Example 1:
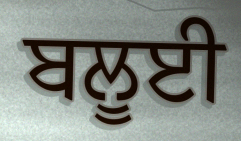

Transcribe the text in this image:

ਬਲੂਈ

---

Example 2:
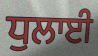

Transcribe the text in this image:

ਧੁਲਾਈ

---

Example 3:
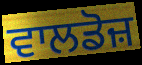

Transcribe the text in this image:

ਵਾਲਡੋਜ਼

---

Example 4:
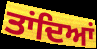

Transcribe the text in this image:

ਤਾਂਦਿਆਂ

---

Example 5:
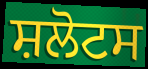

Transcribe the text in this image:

ਸ਼ਲੋਟਸ